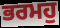
ਭਰਮਹੁ